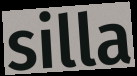
silla